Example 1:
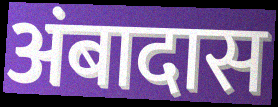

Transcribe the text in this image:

अंबादास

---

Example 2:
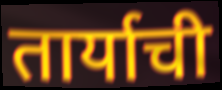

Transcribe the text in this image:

तार्याची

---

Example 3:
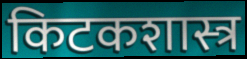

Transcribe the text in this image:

किटकशास्‍त्र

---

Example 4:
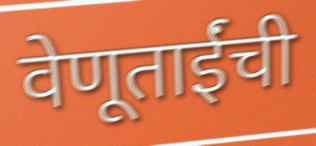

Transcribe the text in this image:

वेणूताईंची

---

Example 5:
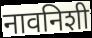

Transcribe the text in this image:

नावनिशी